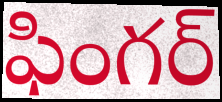
ఫింగర్